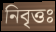
নিবৃত্তঃ